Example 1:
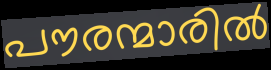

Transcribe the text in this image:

പൗരന്മാരിൽ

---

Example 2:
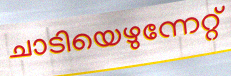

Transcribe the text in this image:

ചാടിയെഴുന്നേറ്റ്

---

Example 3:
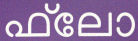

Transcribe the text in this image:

ഫ്‌ലോ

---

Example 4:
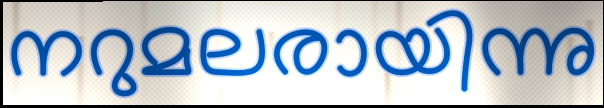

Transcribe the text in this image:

നറുമലരായിന്നു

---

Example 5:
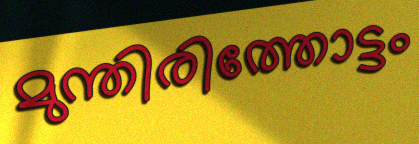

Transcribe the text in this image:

മുന്തിരിത്തോട്ടം